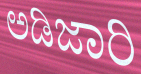
ಅಡಿಜಾರಿ